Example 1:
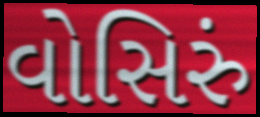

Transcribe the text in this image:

વોસિરું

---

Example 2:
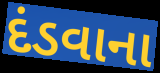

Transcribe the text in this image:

દંડવાના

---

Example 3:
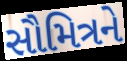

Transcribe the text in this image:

સૌમિત્રને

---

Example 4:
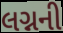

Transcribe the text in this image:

લગ્નની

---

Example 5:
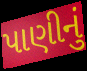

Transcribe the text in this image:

પાણીનું